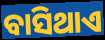
ବାସିଥାଏ